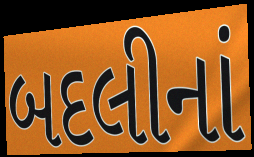
બદલીનાં